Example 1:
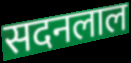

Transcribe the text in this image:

सदनलाल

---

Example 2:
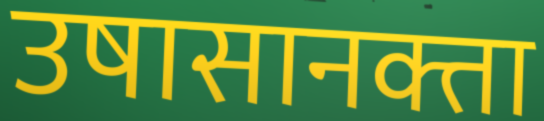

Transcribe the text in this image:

उषासानक्ता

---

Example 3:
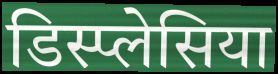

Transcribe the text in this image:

डिस्प्लेसिया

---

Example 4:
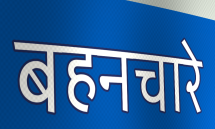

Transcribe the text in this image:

बहनचारे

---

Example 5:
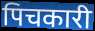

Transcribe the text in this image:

पिचकारी